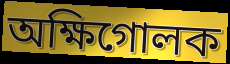
অক্ষিগোলক